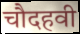
चौदहवी